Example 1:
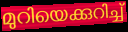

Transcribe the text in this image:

മുറിയെക്കുറിച്ച്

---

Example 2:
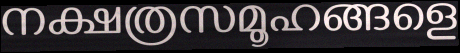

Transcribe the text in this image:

നക്ഷത്രസമൂഹങ്ങളെ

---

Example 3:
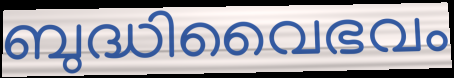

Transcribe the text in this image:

ബുദ്ധിവൈഭവം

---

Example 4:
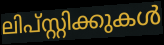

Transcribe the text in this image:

ലിപ്സ്റ്റിക്കുകൾ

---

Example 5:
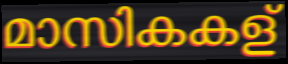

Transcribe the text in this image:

മാസികകള്